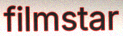
filmstar